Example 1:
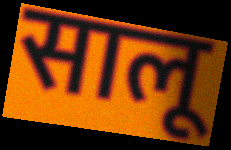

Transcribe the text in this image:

सालू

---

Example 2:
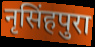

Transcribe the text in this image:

नृसिंहपुरा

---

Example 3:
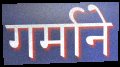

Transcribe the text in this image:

गर्माने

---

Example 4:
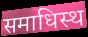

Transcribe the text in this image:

समाधिस्थ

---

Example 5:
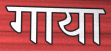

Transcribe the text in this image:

गाया